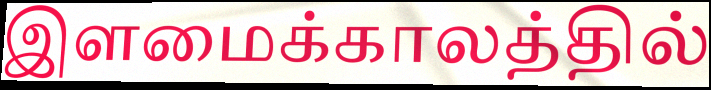
இளமைக்காலத்தில்